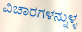
ವಿಚಾರಗಳನ್ನುಳ್ಳ